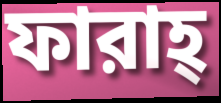
ফারাহ্